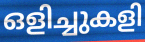
ഒളിച്ചുകളി